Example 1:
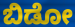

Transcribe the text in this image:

ಬಿಡೋ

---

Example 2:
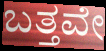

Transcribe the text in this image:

ಬತ್ತವೇ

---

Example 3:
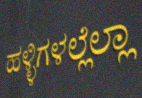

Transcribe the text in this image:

ಹಳ್ಳಿಗಳಲ್ಲೆಲ್ಲಾ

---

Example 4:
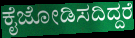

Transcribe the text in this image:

ಕೈಜೋಡಿಸದಿದ್ದರೆ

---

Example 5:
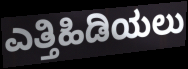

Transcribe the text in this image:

ಎತ್ತಿಹಿಡಿಯಲು